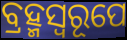
ବ୍ରହ୍ମସ୍ୱରୂପେ